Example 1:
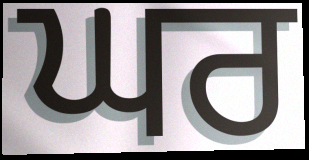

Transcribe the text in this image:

ਘਰ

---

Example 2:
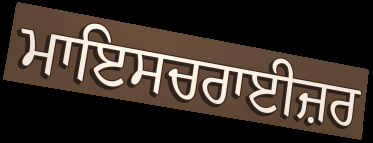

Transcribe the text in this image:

ਮਾਇਸਚਰਾਈਜ਼ਰ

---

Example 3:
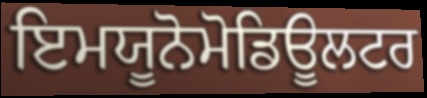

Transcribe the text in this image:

ਇਮਯੂਨੋਮੋਡਿਊਲਟਰ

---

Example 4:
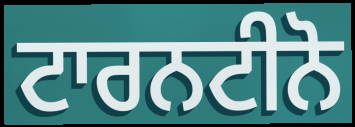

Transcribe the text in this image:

ਟਾਰਨਟੀਨੋ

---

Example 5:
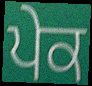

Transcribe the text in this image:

ਪੇਕ